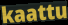
kaattu